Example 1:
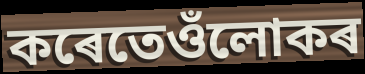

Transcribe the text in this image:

কৰেতেওঁলোকৰ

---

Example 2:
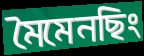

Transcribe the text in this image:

মৈমেনছিং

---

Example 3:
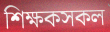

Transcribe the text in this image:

শিক্ষকসকল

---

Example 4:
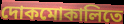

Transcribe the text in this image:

দোকমোকালিতে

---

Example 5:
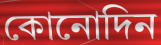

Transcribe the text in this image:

কোনোদিন